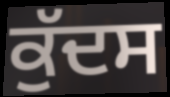
ਕੁੱਦਸ